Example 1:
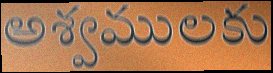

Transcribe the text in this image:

అశ్వములకు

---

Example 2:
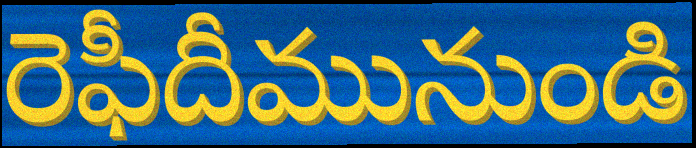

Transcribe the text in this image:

రెఫీదీమునుండి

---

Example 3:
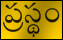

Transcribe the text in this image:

ప్రస్థం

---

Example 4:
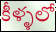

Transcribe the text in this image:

కీళ్ళలో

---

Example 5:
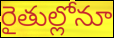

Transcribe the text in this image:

రైతుల్లోనూ